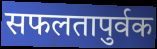
सफलतापुर्वक